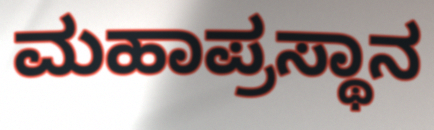
ಮಹಾಪ್ರಸ್ಥಾನ